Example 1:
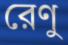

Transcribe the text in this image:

রেণু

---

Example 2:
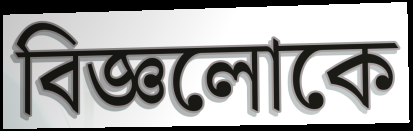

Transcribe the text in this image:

বিজ্ঞলোকে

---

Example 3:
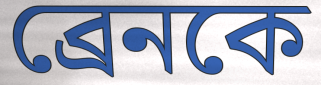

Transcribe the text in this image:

ব্রেনকে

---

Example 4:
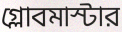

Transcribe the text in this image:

গ্লোবমাস্টার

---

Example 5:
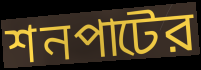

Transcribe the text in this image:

শনপাটের